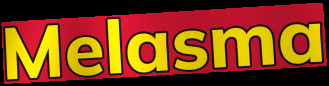
Melasma